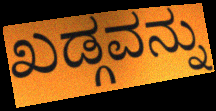
ಖಡ್ಗವನ್ನು